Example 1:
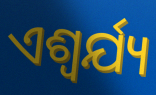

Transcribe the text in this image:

ଏଶ୍ଵର୍ଯ୍ୟ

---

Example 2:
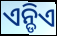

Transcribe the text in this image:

ଏନ୍ଡିଏ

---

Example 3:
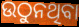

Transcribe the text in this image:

ଉଠୁନଥିବା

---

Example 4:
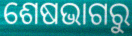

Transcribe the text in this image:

ଶେଷଭାଗରୁ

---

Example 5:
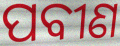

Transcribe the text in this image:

ପବୀଣ